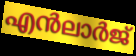
എൻലാർജ്